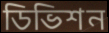
ডিভিশন